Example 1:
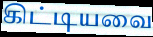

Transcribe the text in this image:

கிட்டியவை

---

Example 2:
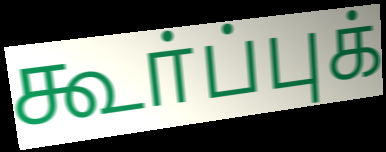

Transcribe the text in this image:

கூர்ப்புக்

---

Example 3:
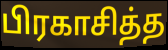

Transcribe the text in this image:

பிரகாசித்த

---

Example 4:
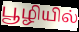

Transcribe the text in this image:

பூழியில்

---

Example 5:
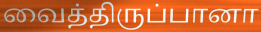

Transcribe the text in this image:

வைத்திருப்பானா